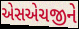
એસએચજીને